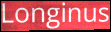
Longinus